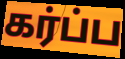
கர்ப்ப